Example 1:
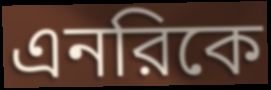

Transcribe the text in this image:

এনরিকে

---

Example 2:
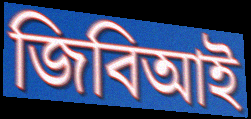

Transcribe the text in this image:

জিবিআই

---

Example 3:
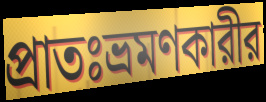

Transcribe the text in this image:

প্রাতঃভ্রমণকারীর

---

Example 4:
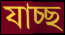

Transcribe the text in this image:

যাচ্ছ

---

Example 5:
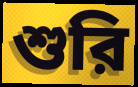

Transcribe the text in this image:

শুরি